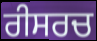
ਰੀਸਰਚ